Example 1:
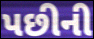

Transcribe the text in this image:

પછીની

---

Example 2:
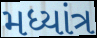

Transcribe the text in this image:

મધ્યાંત્ર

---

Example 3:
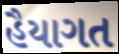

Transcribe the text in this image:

હૈયાગત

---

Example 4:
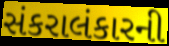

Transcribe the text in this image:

સંકરાલંકારની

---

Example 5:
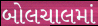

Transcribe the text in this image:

બોલચાલમાં